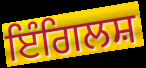
ਇੰਗਿਲਸ਼